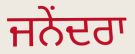
ਜਨੇਂਦਰਾ